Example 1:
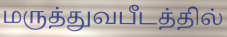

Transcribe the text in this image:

மருத்துவபீடத்தில்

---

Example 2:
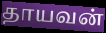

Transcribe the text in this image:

தாயவன்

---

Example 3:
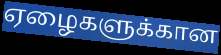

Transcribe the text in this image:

ஏழைகளுக்கான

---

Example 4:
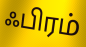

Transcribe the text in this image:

ஃபிரம்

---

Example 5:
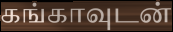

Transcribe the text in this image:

கங்காவுடன்